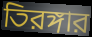
তিরঙ্গার